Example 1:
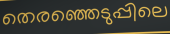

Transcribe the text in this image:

തെരഞ്ഞെടുപ്പിലെ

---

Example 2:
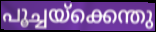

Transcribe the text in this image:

പൂച്ചയ്ക്കെന്തു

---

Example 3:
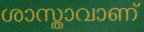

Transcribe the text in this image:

ശാസ്താവാണ്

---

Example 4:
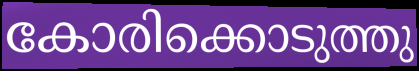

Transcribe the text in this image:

കോരിക്കൊടുത്തു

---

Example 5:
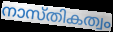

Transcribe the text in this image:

നാസ്തികത്വം